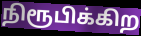
நிரூபிக்கிற